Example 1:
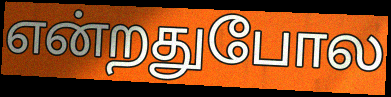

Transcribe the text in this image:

என்றதுபோல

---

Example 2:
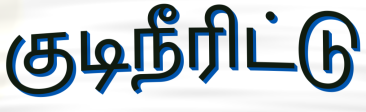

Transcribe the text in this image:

குடிநீரிட்டு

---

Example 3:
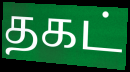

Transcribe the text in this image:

தகட்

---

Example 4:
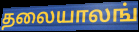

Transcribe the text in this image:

தலையாலங்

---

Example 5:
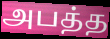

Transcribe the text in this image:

அபத்த